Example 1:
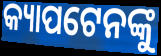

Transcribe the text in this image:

କ୍ୟାପଟେନଙ୍କୁ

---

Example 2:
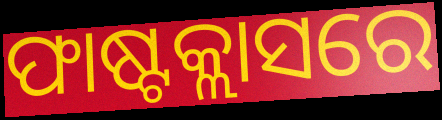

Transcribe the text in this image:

ଫାଷ୍ଟକ୍ଲାସରେ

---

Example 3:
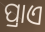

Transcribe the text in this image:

ପ୍ରାଏ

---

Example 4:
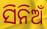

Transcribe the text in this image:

ସିନିଅଁ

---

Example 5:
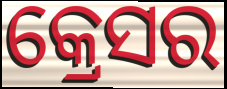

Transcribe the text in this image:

କ୍ରେସର